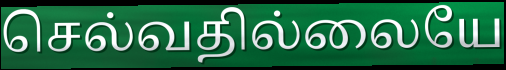
செல்வதில்லையே